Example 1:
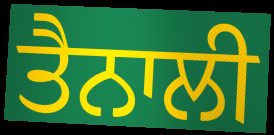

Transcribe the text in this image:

ਤੈਨਾਲੀ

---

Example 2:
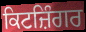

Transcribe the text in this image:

ਕਿਟਜ਼ਿੰਗਰ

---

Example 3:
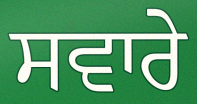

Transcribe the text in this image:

ਸਵਾਰੇ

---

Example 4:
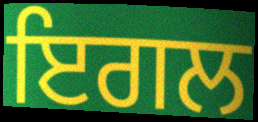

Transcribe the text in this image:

ਇਗਲ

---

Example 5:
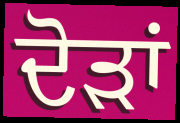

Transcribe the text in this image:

ਦੋੜਾਂ